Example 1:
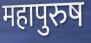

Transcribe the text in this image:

महापुरुष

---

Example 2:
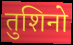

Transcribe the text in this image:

तुशिनो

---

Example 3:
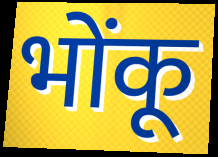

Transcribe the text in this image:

भोंकू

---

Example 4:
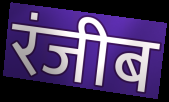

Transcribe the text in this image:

रंजीब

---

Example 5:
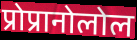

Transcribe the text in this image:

प्रोप्रानोलोल